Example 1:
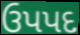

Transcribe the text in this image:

ઉપપદ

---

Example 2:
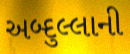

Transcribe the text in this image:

અબ્દુલ્લાની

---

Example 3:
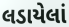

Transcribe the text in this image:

લડાયેલાં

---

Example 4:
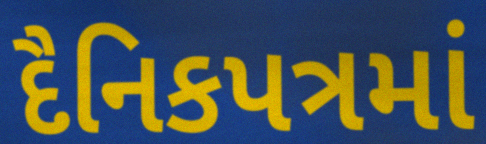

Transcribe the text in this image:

દૈનિકપત્રમાં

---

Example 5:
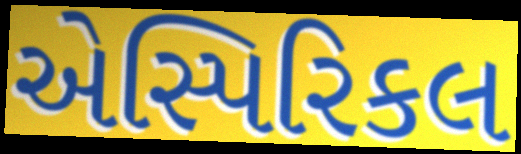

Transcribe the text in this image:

એસ્પિરિકલ